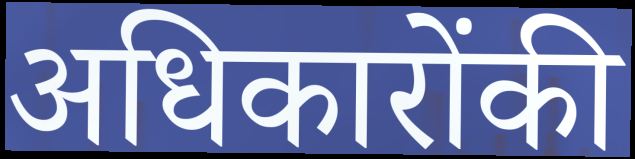
अधिकारोंकी